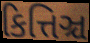
કિત્તિઞ્ચ